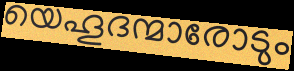
യെഹൂദന്മാരോടും